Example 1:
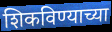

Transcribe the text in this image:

शिकविण्याच्या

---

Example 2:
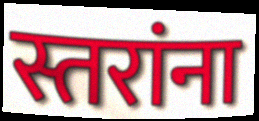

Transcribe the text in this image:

स्तरांना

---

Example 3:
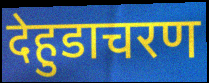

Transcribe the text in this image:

देहुडाचरण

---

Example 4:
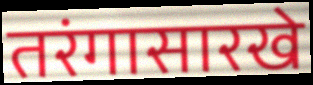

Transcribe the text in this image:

तरंगासारखे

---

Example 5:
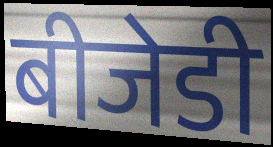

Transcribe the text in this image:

बीजेडी